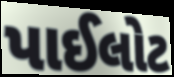
પાઈલોટ